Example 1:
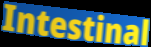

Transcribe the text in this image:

Intestinal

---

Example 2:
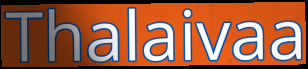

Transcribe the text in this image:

Thalaivaa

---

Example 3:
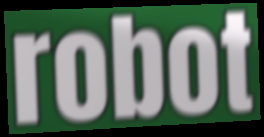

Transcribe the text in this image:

robot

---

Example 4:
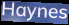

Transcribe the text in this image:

Haynes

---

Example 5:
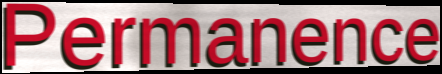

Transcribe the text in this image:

Permanence